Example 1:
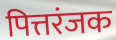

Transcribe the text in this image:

पित्तरंजक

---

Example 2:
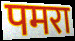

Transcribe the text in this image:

पमरा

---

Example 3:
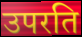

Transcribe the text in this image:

उपरति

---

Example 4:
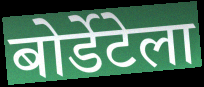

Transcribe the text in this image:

बोर्डेटेला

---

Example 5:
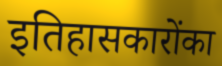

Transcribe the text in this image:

इतिहासकारोंका